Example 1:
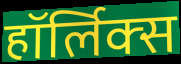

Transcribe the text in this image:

हॉर्लिक्‍स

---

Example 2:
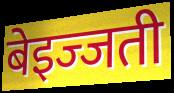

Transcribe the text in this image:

बेइज्‍जती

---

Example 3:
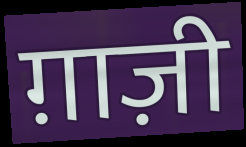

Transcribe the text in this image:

ग़ाज़ी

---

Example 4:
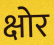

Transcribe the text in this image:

क्षोर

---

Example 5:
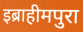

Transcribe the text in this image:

इब्राहीमपुरा